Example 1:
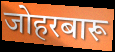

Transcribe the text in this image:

जोहरबारू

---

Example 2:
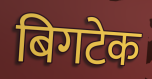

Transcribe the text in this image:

बिगटेक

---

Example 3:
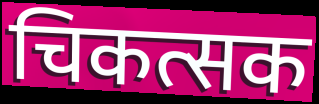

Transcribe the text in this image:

चिकत्सक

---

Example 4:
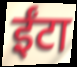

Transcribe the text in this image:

ईंटा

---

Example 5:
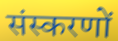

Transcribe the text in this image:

संस्करणों